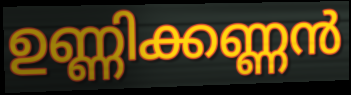
ഉണ്ണിക്കണ്ണൻ